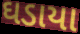
ઘડાયા